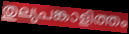
തുല്യപങ്കാളിത്തം